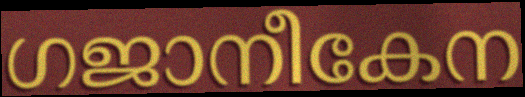
ഗജാനീകേന